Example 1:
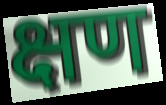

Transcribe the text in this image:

क्षण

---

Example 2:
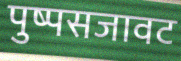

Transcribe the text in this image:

पुष्पसजावट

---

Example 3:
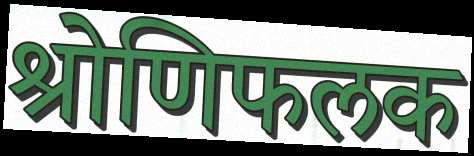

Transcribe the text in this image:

श्रोणिफलक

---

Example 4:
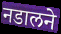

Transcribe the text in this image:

नडालने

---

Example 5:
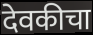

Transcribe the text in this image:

देवकीचा